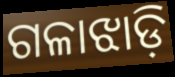
ଗଳାଝାଡ଼ି